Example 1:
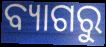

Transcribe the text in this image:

ବ୍ୟାଗରୁ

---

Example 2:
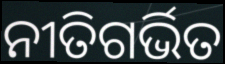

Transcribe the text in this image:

ନୀତିଗର୍ଭିତ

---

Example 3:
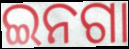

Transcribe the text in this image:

ଇନଗା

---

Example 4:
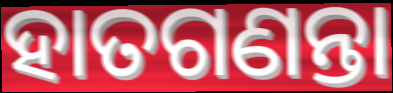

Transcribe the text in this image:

ହାତଗଣନ୍ତା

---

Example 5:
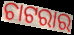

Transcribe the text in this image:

ଚାଟରାର